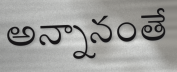
అన్నానంతే